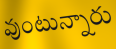
వుంటున్నారు